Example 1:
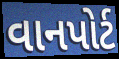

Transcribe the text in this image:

વાનપોર્ટ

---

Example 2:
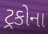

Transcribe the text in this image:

ટ્રકોના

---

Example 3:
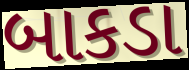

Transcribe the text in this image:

બાકડા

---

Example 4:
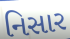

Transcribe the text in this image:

નિસાર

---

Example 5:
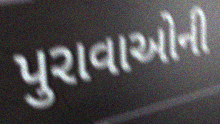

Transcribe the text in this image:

પુરાવાઓની